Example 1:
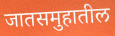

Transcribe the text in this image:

जातसमुहातील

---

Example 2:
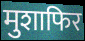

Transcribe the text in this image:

मुशाफिर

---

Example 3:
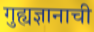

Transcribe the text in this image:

गुह्यज्ञानाची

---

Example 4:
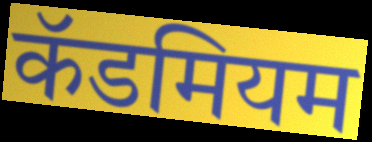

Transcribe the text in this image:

कॅडमियम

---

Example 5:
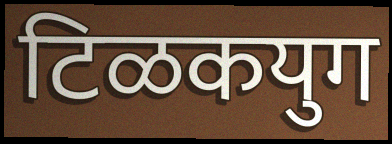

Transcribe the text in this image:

टिळकयुग